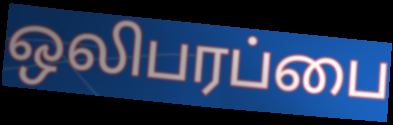
ஒலிபரப்பை